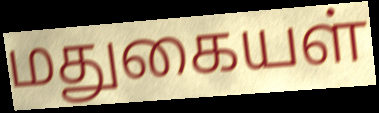
மதுகையள்